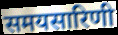
समयसारिणी